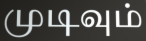
முடிவும்